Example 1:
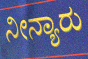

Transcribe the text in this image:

ನೀನ್ಯಾರು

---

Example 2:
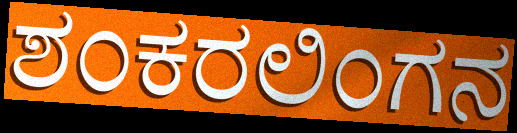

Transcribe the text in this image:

ಶಂಕರಲಿಂಗನ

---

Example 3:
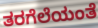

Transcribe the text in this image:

ತರಗೆಲೆಯಂತೆ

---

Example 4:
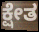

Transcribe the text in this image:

ಕ್ಷೇತ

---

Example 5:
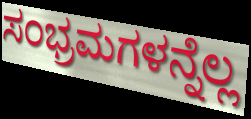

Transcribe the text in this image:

ಸಂಭ್ರಮಗಳನ್ನೆಲ್ಲ